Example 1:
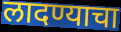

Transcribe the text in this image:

लादण्याचा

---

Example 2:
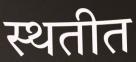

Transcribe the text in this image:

स्थतीत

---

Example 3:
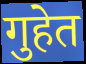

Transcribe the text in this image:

गुहेत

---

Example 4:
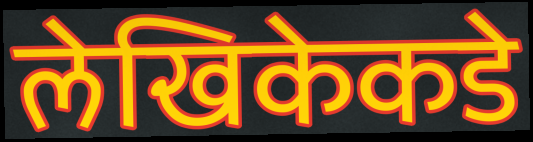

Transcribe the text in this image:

लेखिकेकडे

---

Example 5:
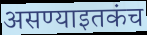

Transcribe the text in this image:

असण्याइतकंच